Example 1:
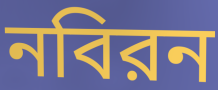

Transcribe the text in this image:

নবিরন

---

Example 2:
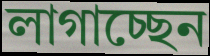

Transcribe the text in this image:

লাগাচ্ছেন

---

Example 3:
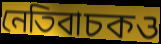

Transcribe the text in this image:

নেতিবাচকও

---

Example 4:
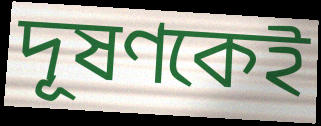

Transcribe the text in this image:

দূষণকেই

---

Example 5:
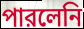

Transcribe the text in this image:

পারলেনি